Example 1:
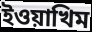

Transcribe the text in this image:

ইওয়াখিম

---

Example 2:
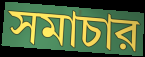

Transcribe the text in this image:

সমাচার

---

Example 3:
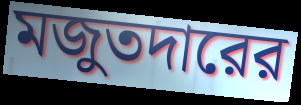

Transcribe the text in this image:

মজুতদারের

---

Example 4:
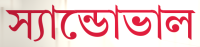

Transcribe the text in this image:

স্যান্ডোভাল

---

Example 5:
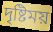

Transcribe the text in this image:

দৃষ্টিময়